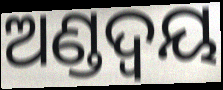
ଅଣ୍ଡଦ୍ୱୟ